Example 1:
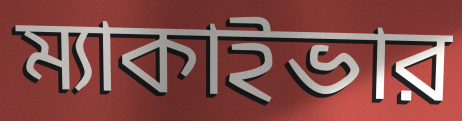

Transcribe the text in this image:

ম্যাকাইভার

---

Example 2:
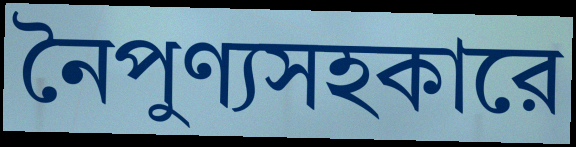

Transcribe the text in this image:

নৈপুণ্যসহকারে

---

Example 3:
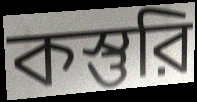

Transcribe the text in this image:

কস্তুরি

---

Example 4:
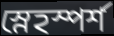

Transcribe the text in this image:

স্নেহস্পর্শ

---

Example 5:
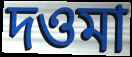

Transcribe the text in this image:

দওমা